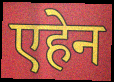
एहेन